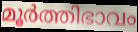
മൂർത്തിഭാവം